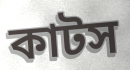
কাটস